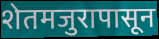
शेतमजुरापासून